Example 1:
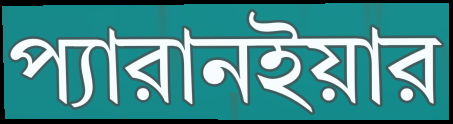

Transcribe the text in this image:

প্যারানইয়ার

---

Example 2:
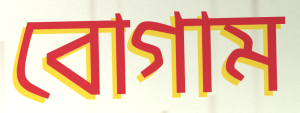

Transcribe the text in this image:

বোগাম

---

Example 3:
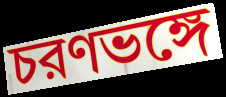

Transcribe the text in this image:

চরণভঙ্গে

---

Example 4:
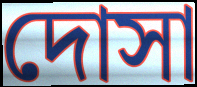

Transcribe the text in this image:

দোসা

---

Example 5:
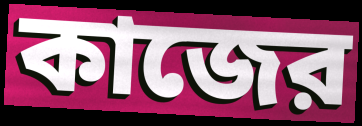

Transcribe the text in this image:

কাজের